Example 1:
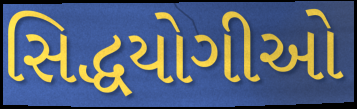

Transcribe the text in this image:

સિદ્ધયોગીઓ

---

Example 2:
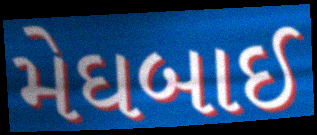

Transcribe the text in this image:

મેઘબાઈ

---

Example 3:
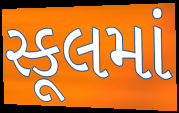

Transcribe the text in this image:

સ્કૂલમાં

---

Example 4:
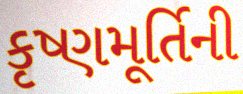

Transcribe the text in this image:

કૃષ્ણમૂર્તિની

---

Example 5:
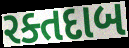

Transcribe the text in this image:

રક્તદાબ